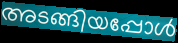
അടങ്ങിയപ്പോൾ